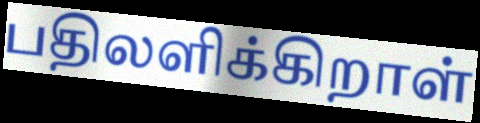
பதிலளிக்கிறாள்